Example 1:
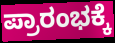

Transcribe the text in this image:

ಪ್ರಾರಂಭಕ್ಕೆ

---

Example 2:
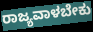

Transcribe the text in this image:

ರಾಜ್ಯವಾಳಬೇಕು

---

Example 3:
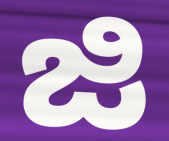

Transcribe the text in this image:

ಜಿ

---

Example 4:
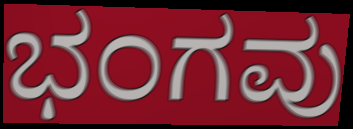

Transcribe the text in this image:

ಭಂಗವು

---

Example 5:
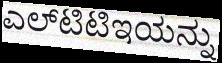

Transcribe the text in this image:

ಎಲ್‌ಟಿಟಿಇಯನ್ನು